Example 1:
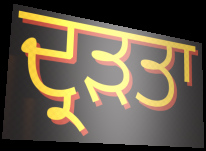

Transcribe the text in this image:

ਦ੍ਰੜਤਾ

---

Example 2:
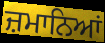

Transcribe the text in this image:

ਜ਼ਮਾਨਿਆਂ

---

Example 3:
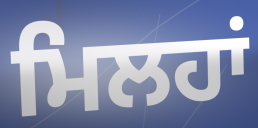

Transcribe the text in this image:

ਮਿਲਹਾਂ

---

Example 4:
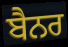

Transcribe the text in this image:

ਬੈਨਰ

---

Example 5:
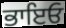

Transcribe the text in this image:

ਭਾਇਓ